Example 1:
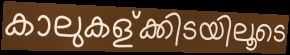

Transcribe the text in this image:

കാലുകള്ക്കിടയിലൂടെ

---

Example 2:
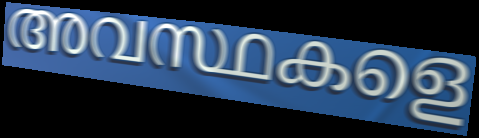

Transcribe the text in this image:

അവസ്ഥകളെ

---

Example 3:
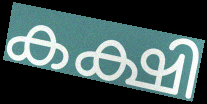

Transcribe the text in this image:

കക്ഷി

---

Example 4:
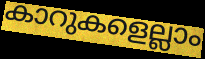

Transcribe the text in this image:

കാറുകളെല്ലാം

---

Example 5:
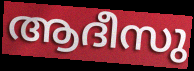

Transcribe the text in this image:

ആദീസു